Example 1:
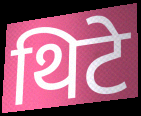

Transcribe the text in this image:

थिटे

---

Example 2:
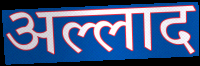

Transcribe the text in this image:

अल्लाद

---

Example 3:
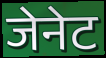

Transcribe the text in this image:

जेनेट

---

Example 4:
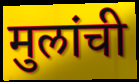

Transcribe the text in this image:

मुलांची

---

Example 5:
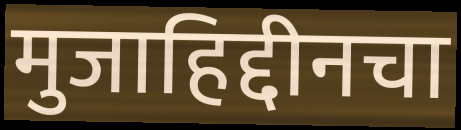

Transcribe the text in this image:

मुजाहिद्दीनचा